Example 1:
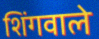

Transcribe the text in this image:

शिंगवाले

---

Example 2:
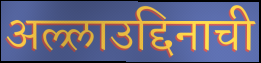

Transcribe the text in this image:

अल्लाउद्दिनाची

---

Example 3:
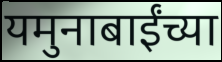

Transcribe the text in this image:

यमुनाबाईंच्या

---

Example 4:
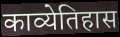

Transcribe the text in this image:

काव्येतिहास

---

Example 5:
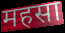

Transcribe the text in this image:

महसा